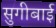
सुगीबाई